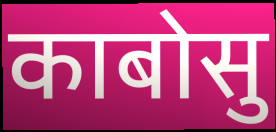
काबोसु